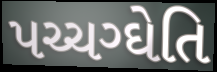
પચ્ચગ્ઘેતિ